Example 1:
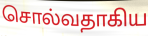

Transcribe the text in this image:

சொல்வதாகிய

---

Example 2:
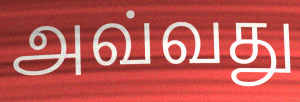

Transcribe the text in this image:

அவ்வது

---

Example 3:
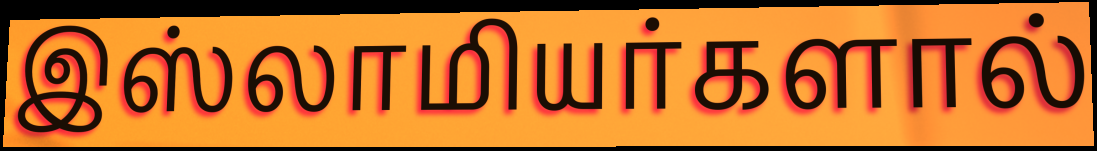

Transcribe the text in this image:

இஸ்லாமியர்களால்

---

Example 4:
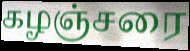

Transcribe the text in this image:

கழஞ்சரை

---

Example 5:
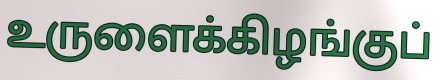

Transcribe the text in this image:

உருளைக்கிழங்குப்